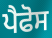
ਪੈਫੋਸ